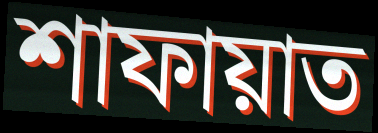
শাফায়াত